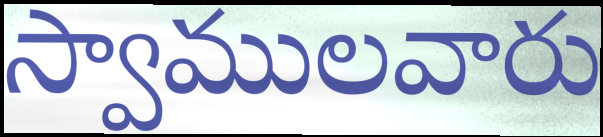
స్వాములవారు